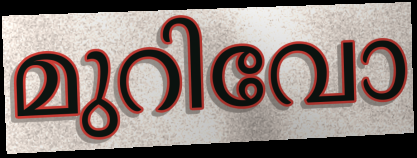
മുറിവോ